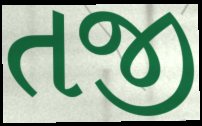
તજી